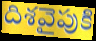
దిశవైపుకి